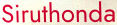
Siruthonda